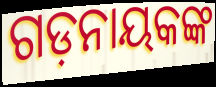
ଗଡ଼ନାୟକଙ୍କ